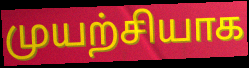
முயற்சியாக